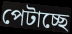
পেটাচ্ছে